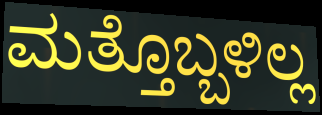
ಮತ್ತೊಬ್ಬಳಿಲ್ಲ